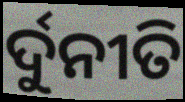
ର୍ଦୁନୀତି